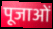
पूजाओं